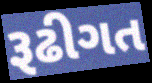
રૂઢીગત